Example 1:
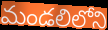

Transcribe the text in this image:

మండలిలోని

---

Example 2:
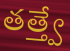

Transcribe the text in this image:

తత్త్వే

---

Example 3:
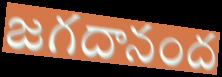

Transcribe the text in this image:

జగదానంద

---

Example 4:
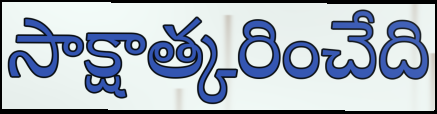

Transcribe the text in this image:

సాక్షాత్కరించేది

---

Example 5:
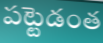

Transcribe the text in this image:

పట్టెడంత